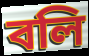
বলি